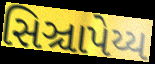
સિઞ્ચાપેય્ય